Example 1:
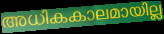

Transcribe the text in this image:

അധികകാലമായില്ല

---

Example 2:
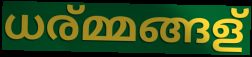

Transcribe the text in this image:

ധര്മ്മങ്ങള്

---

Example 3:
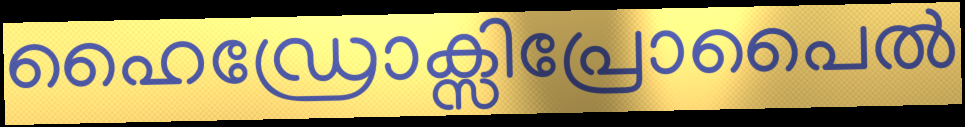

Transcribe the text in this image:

ഹൈഡ്രോക്സിപ്രോപൈൽ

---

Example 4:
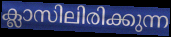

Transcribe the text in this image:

ക്ലാസിലിരിക്കുന്ന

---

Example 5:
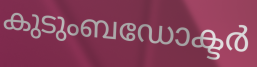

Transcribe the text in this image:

കുടുംബഡോക്ടർ